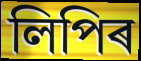
লিপিৰ